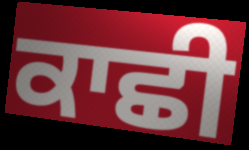
ਕਾਛੀ